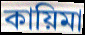
কায়িমা